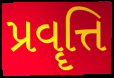
પ્રવૄત્તિ